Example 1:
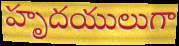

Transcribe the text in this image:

హృదయులుగా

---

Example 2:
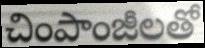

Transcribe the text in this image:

చింపాంజీలతో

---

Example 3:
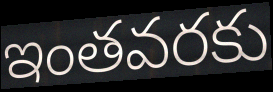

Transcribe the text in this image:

ఇంతవరకు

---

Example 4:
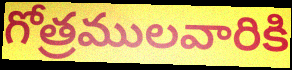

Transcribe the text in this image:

గోత్రములవారికి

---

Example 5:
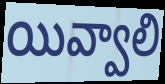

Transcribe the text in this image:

యివ్వాలి